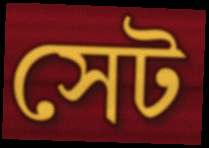
সেট